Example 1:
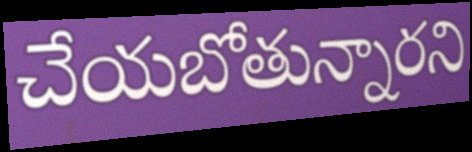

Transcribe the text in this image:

చేయబోతున్నారని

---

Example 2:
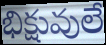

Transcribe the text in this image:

భిక్షువులే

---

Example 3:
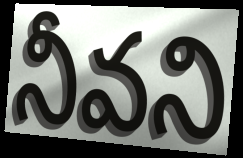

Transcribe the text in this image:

నీవని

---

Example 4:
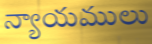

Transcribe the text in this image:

న్యాయములు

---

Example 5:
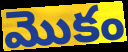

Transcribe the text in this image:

మొకం